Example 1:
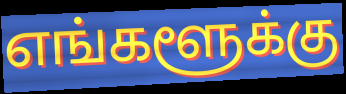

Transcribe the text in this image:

எங்களூக்கு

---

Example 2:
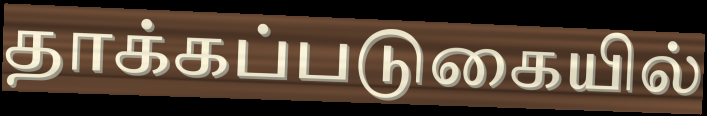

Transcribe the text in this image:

தாக்கப்படுகையில்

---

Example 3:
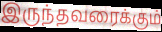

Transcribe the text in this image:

இருந்தவரைக்கும்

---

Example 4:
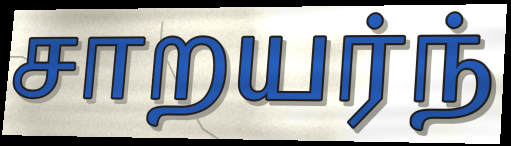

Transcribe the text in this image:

சாறயர்ந்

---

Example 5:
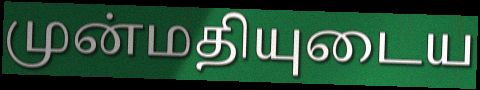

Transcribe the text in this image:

முன்மதியுடைய